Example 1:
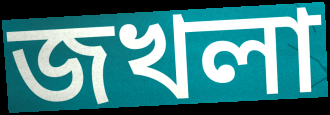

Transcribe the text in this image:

জখলা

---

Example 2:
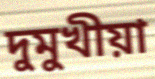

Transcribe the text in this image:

দুমুখীয়া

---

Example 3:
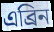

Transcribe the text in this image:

এব্ৰিন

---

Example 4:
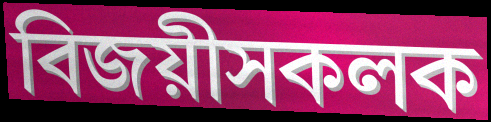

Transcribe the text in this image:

বিজয়ীসকলক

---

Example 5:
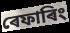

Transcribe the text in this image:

ৰেফাৰিং